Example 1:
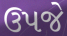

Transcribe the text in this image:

ઉપજે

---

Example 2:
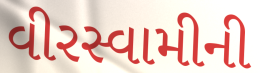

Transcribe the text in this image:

વીરસ્વામીની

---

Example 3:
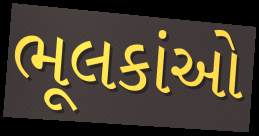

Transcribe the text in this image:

ભૂલકાંઓ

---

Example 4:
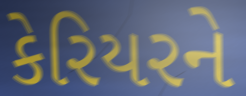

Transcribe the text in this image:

કેરિયરને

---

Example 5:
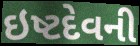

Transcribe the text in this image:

ઇષ્ટદેવની